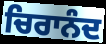
ਚਿਰਾਨੰਦ